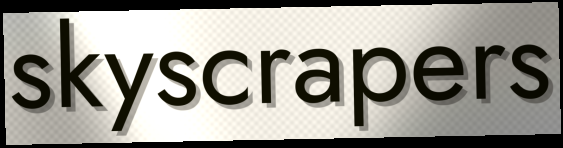
skyscrapers